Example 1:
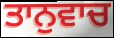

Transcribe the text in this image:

ਤਾਨੁਵਾਚ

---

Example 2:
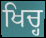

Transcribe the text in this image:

ਖਿਚ੍ਹ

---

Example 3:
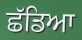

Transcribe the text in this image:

ਛੱਡਿਆ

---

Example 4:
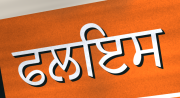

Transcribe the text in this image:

ਫਲਇਸ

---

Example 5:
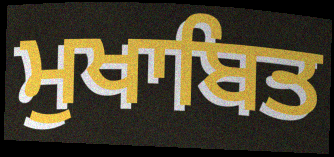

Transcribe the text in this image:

ਮੁਖਾਬਿਤ